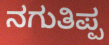
ನಗುತಿಪ್ಪ